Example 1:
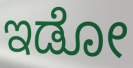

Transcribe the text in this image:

ಇಡೋ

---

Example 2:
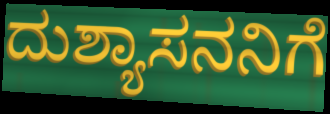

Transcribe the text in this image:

ದುಶ್ಯಾಸನನಿಗೆ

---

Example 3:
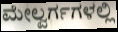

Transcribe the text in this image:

ಮೇಲ್ವರ್ಗಗಳಲ್ಲಿ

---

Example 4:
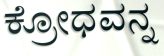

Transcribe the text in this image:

ಕ್ರೋಧವನ್ನ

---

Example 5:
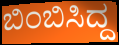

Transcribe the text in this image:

ಬಿಂಬಿಸಿದ್ದ